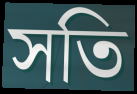
সতি